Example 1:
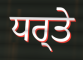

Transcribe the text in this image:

ਧਰ੍ਤੇ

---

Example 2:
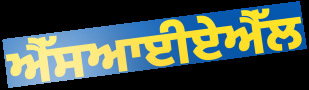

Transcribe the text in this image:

ਐੱਸਆਈਏਐੱਲ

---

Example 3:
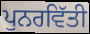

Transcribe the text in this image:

ਪੁਨਰਵਿੱਤੀ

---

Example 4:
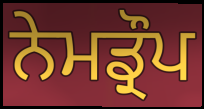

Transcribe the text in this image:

ਨੇਮਡ੍ਰੌਪ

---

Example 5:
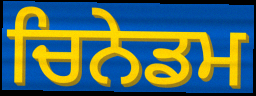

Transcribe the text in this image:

ਚਿਨੇਡਮ